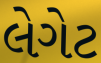
લેગેટ